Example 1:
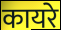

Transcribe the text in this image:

कायरे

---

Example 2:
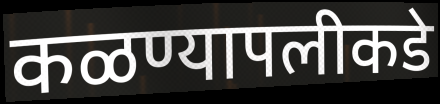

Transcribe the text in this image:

कळण्यापलीकडे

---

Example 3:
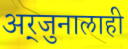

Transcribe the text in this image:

अर्जुनालाही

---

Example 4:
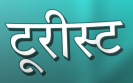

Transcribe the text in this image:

टूरीस्ट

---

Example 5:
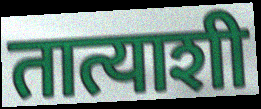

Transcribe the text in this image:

तात्याशी